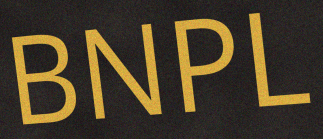
BNPL